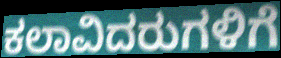
ಕಲಾವಿದರುಗಳಿಗೆ